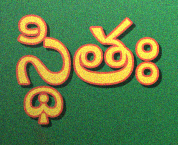
స్థితః